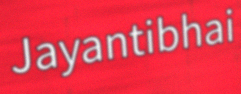
Jayantibhai